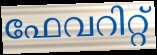
ഫേവറിറ്റ്